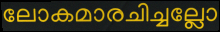
ലോകമാരചിച്ചല്ലോ